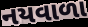
નયવાળા